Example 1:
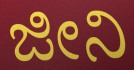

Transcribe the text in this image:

ಜೀನಿ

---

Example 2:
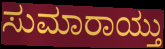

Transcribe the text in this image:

ಸುಮಾರಾಯ್ತು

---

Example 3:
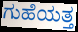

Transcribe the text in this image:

ಗುಹೆಯತ್ತ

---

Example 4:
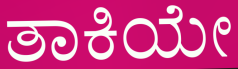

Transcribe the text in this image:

ತಾಕಿಯೇ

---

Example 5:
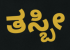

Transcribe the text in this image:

ತಸ್ಬೀ